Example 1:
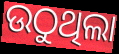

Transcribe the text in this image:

ଉଠୁଥିଲା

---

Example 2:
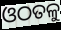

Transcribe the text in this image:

ଓଠତଳୁ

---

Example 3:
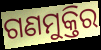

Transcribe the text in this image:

ଗଣମୁକ୍ତିର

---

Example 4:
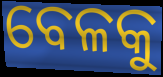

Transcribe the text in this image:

ବେଳକୁ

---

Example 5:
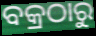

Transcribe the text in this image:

ବକ୍ରଠାରୁ